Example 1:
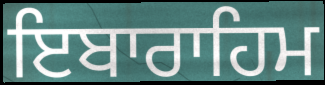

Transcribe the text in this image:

ਇਬਾਰਾਹਿਮ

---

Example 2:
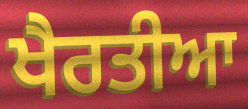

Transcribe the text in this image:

ਖੈਰਤੀਆ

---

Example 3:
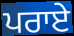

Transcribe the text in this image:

ਪਰਾਏ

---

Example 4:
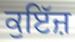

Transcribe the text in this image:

ਕੁਇੱਜ਼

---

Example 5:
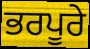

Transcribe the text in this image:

ਭਰਪੂਰੇ